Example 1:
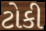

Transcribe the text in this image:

ટોકી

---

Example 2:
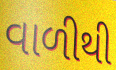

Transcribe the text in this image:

વાળીથી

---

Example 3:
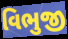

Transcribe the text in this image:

વિભુજી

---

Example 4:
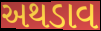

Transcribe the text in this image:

અથડાવ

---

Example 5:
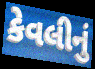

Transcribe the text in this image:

કેવલીનું